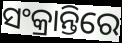
ସଂକ୍ରାନ୍ତିରେ